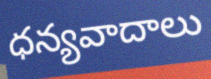
ధన్యవాదాలు